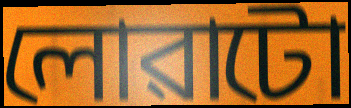
লোৱাটো